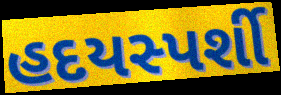
હદયસ્પર્શી